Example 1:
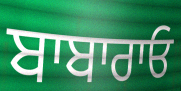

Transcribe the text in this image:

ਬਾਬਾਰਾਓ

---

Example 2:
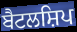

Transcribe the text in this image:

ਬੈਟਲਸ਼ਿਪ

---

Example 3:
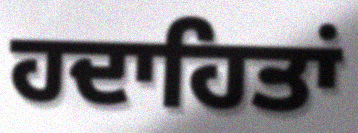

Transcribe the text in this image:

ਹਦਾਹਿਤਾਂ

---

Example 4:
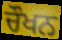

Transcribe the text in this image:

ਚੌਖਨ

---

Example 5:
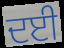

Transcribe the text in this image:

ਦਈ